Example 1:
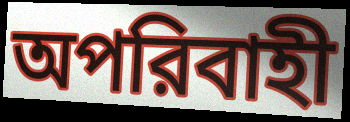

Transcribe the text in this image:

অপরিবাহী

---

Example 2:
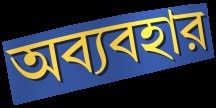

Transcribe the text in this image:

অব্যবহার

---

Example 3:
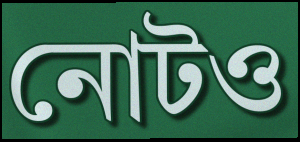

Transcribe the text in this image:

নোটও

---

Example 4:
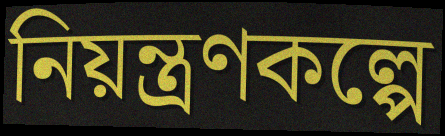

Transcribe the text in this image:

নিয়ন্ত্রণকল্পে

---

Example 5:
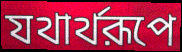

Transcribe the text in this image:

যথার্থরূপে